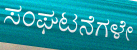
ಸಂಘಟನೆಗಳೇ